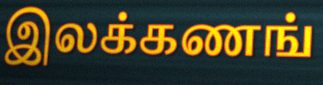
இலக்கணங்